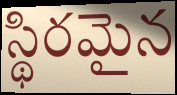
స్థిరమైన